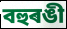
বহুৰঙী